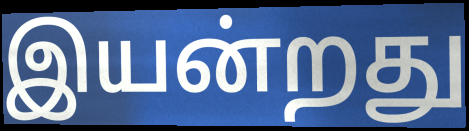
இயன்றது